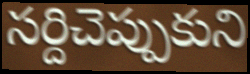
సర్దిచెప్పుకుని